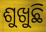
ଶୁଖୁଛି